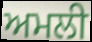
ਅਮਲੀ